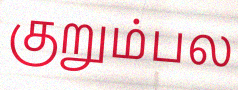
குறும்பல